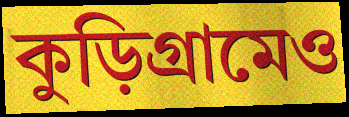
কুড়িগ্রামেও